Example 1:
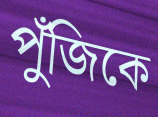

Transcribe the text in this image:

পুঁজিকে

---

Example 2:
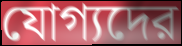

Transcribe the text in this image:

যোগ্যদের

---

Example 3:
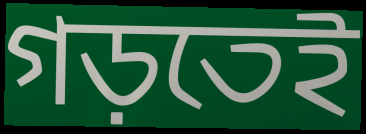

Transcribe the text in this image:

গড়তেই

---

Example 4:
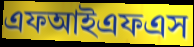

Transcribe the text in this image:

এফআইএফএস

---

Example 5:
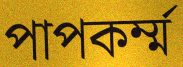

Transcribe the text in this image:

পাপকর্ম্ম